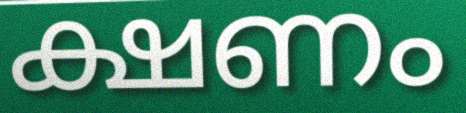
ക്ഷണം